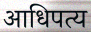
आधिपत्य